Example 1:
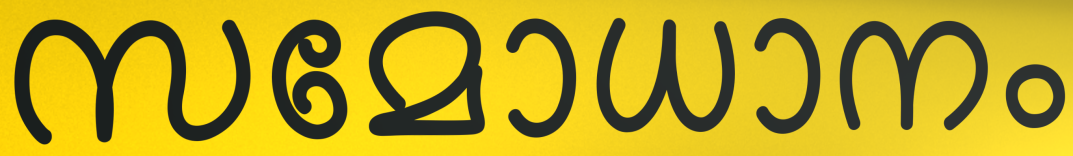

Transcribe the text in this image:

സമോധാനം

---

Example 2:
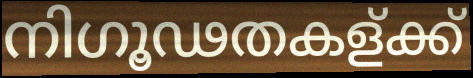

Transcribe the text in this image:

നിഗൂഢതകള്ക്ക്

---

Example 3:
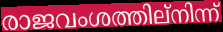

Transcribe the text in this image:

രാജവംശത്തില്നിന്ന്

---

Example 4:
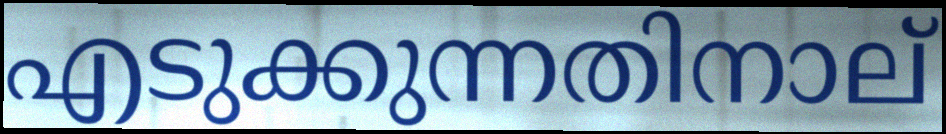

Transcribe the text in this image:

എടുക്കുന്നതിനാല്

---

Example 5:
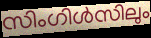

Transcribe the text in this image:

സിംഗിൾസിലും